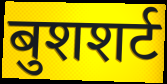
बुशशर्ट